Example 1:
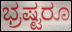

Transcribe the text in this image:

ಭ್ರಷ್ಟರೂ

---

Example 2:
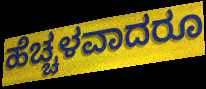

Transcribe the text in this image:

ಹೆಚ್ಚಳವಾದರೂ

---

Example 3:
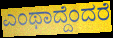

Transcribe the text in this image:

ಎಂಥಾದ್ದೆಂದರೆ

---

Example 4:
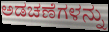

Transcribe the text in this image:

ಅಡಚಣೆಗಳನ್ನು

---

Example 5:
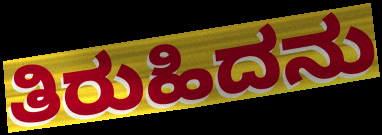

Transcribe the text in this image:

ತಿರುಹಿದನು